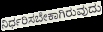
ನಿರ್ಧರಿಸಬೇಕಾಗಿರುವುದು